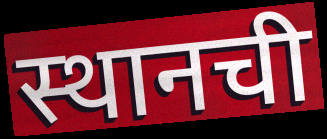
स्थानची